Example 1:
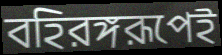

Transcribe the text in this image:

বহিরঙ্গরূপেই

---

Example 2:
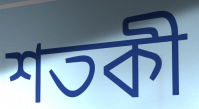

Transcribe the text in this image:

শতকী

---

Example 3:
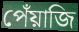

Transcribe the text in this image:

পেঁয়াজি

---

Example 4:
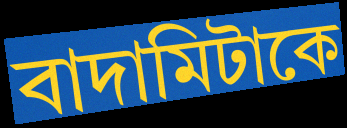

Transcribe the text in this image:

বাদামিটাকে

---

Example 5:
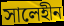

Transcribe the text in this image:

সালেহীন